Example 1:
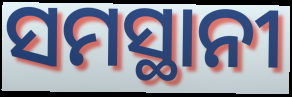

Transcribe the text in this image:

ସମସ୍ଥାନୀ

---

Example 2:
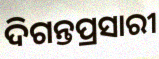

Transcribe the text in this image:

ଦିଗନ୍ତପ୍ରସାରୀ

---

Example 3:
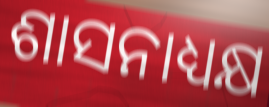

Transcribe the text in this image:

ଶାସନାଧ୍ୟକ୍ଷ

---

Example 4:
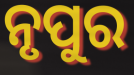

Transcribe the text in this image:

ନୃପୁର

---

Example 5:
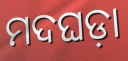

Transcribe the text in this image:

ମଦଘଡ଼ା